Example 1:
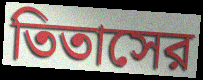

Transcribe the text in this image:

তিতাসের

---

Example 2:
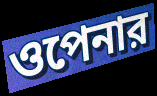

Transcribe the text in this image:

ওপেনার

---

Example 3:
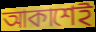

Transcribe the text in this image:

আকাশেই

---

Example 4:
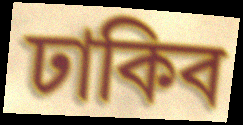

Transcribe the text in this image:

ঢাকিব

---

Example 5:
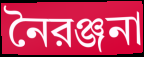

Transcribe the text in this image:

নৈরঞ্জনা